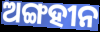
ଅଙ୍ଗହୀନ